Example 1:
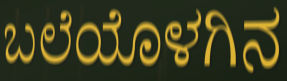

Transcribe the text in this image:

ಬಲೆಯೊಳಗಿನ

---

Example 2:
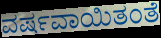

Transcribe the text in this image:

ವರ್ಷವಾಯಿತಂತೆ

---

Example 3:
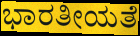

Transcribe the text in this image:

ಭಾರತೀಯತೆ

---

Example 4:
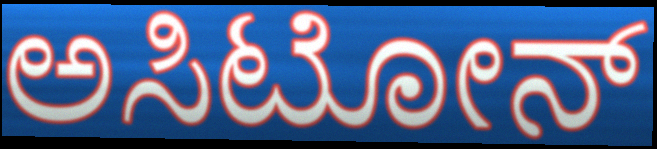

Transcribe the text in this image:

ಅಸಿಟೋನ್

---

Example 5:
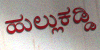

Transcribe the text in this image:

ಹುಲ್ಲುಕಡ್ಡಿ